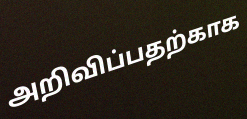
அறிவிப்பதற்காக